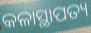
କଳାସ୍ଥାପତ୍ୟ